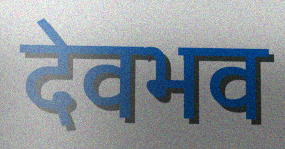
देवभव